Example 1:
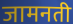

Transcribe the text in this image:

जामनती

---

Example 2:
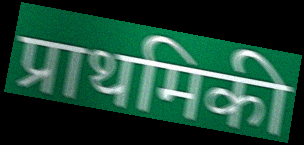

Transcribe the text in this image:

प्राथमिकी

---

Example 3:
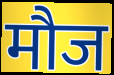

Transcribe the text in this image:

मौज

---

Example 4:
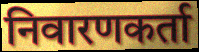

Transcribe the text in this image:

निवारणकर्ता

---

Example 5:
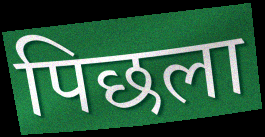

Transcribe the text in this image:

पिछला